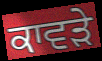
ਕਾਵੜੇ